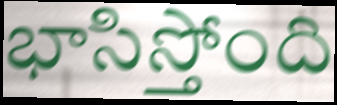
భాసిస్తోంది